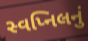
સ્વપ્નિલનું